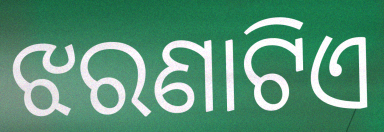
ଝରଣାଟିଏ